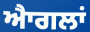
ਐਾਗਲਾਂ